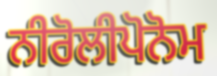
ਨੀਰੋਲੀਪੋਨੋਮ